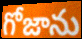
గోజాను